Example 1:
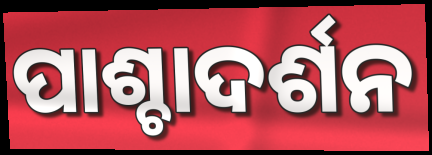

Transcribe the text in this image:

ପାଶ୍ଚାଦର୍ଶନ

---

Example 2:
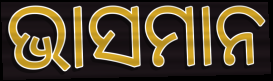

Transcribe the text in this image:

ଭାସମାନ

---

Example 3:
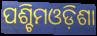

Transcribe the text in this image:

ପଶ୍ଚିମଓଡ଼ିଶା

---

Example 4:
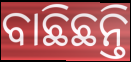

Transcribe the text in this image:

ବାଛିଛନ୍ତି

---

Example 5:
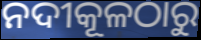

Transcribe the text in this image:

ନଦୀକୂଳଠାରୁ